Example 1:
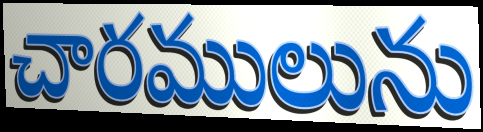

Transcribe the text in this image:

చారములును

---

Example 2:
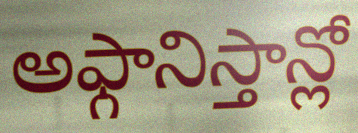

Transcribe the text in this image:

అఫ్గానిస్తాన్లో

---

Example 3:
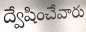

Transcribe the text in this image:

ద్వేషించేవారు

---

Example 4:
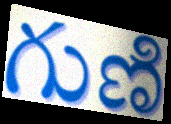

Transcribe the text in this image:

గుణి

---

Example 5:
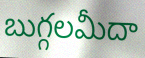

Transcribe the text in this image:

బుగ్గలమీదా